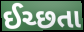
ઈચ્છતા